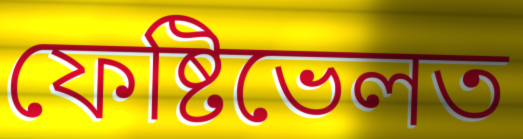
ফেষ্টিভেলত